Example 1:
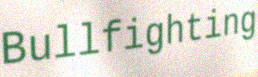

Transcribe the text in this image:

Bullfighting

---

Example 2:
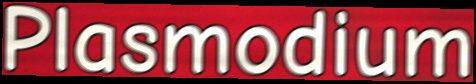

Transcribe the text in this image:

Plasmodium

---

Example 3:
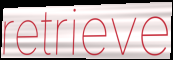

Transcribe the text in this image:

retrieve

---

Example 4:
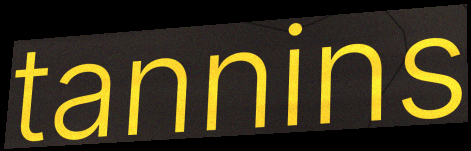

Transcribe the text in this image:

tannins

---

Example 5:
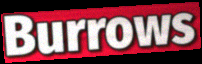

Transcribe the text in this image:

Burrows